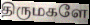
திருமகளே